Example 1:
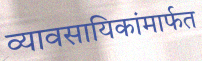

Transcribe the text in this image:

व्यावसायिकांमार्फत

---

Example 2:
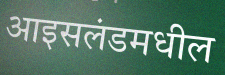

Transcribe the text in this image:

आइसलंडमधील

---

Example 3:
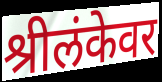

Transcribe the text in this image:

श्रीलंकेवर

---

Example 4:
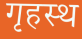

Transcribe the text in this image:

गृहस्थ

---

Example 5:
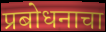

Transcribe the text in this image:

प्रबोधनाचा